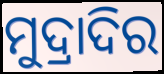
ମୁଦ୍ରାଦିର